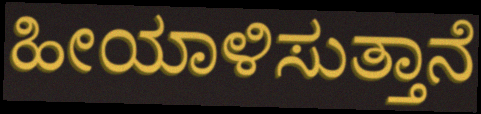
ಹೀಯಾಳಿಸುತ್ತಾನೆ